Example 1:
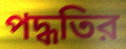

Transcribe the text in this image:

পদ্ধতির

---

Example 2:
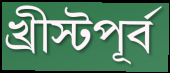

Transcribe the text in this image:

খ্রীস্টপূর্ব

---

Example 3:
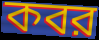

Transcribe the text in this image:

কবর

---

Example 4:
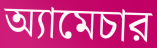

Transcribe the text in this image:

অ্যামেচার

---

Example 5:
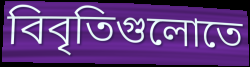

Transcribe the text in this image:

বিবৃতিগুলোতে